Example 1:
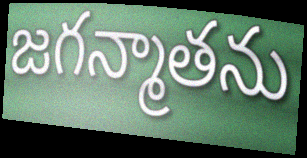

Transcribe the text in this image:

జగన్మాతను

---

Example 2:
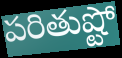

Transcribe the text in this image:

పరితుష్టో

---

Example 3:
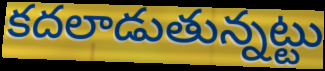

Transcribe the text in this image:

కదలాడుతున్నట్టు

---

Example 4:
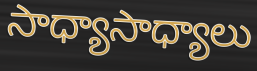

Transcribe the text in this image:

సాధ్యాసాధ్యాలు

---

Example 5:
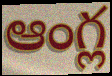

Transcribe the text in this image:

ఆంగ్ల